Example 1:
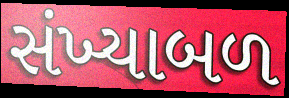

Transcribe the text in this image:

સંખ્યાબળ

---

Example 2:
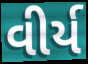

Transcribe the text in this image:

વીર્ય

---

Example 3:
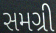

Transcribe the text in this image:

સમગ્રી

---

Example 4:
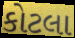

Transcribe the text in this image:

કોટલા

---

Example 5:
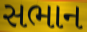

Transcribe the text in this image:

સભાન